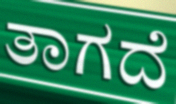
ತಾಗದೆ